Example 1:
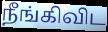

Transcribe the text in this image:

நீங்கிவிட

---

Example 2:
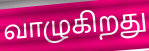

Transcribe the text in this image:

வாழுகிறது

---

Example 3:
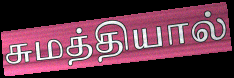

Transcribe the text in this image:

சுமத்தியால்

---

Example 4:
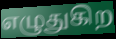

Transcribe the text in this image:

எழுதுகிற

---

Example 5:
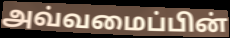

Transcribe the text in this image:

அவ்வமைப்பின்